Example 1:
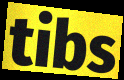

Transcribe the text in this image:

tibs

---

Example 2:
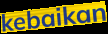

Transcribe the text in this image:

kebaikan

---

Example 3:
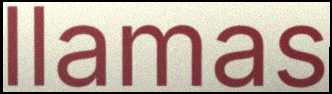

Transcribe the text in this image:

llamas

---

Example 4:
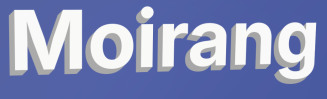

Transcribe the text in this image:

Moirang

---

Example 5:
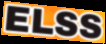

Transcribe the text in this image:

ELSS